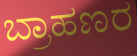
ಬ್ರಾಹಣರ